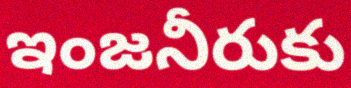
ఇంజనీరుకు